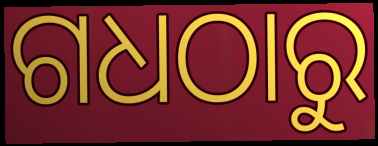
ଗଧଠାରୁ